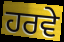
ਹਰਵੇ